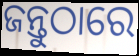
ଜନ୍ତୁଠାରେ